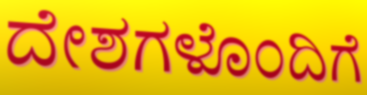
ದೇಶಗಳೊಂದಿಗೆ